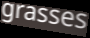
grasses